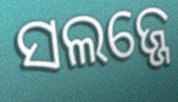
ସଲଜ୍ଜେ